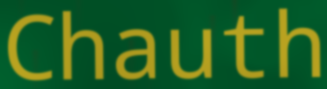
Chauth